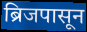
ब्रिजपासून